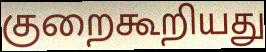
குறைகூறியது